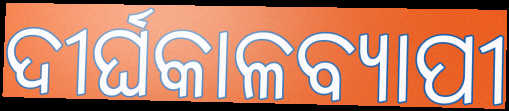
ଦୀର୍ଘକାଳବ୍ୟାପୀ